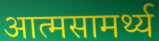
आत्मसामर्थ्य